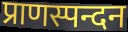
प्राणस्पन्दन